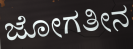
ಜೋಗತೀನ